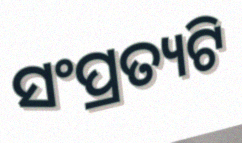
ସଂପ୍ରତ୍ୟଟି